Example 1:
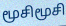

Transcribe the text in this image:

மூசிமூசி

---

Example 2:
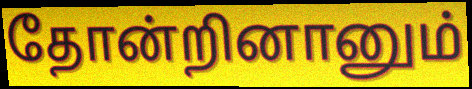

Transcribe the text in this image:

தோன்றினானும்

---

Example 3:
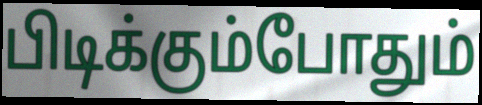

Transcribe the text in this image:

பிடிக்கும்போதும்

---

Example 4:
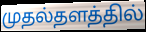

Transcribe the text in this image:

முதல்தளத்தில்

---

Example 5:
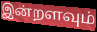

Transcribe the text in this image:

இன்றளவும்